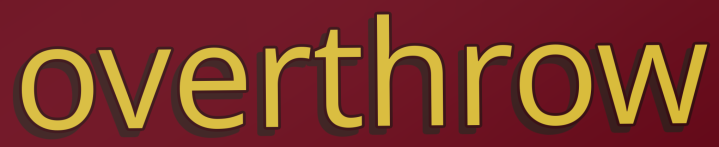
overthrow